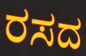
ರಸದ